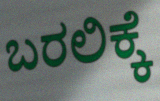
ಬರಲಿಕ್ಕೆ